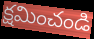
క్షమించండి